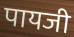
पायजी